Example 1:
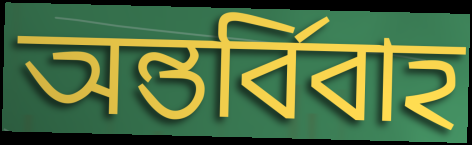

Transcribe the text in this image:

অন্তর্বিবাহ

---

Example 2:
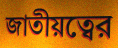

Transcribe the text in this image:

জাতীয়ত্বের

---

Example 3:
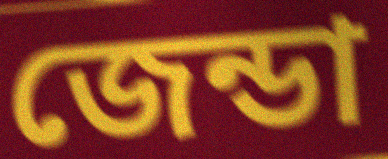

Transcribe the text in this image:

জেন্ডা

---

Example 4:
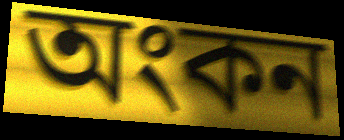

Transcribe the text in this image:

অংকন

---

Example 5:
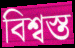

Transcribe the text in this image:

বিশ্বস্ত